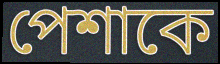
পেশাকে